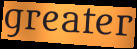
greater